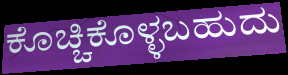
ಕೊಚ್ಚಿಕೊಳ್ಳಬಹುದು